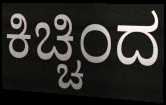
ಕಿಚ್ಚಿಂದ